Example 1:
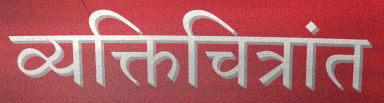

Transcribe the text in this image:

व्यक्तिचित्रांत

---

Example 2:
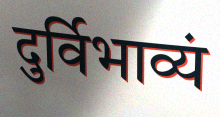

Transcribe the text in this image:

दुर्विभाव्यं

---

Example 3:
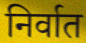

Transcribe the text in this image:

निर्वात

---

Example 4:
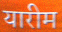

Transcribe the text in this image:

यारीम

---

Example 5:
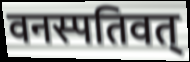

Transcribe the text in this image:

वनस्पतिवत्